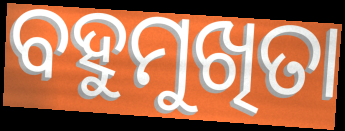
ବହୁମୁଖିତା